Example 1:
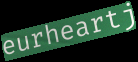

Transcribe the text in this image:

eurheartj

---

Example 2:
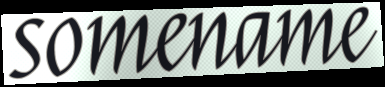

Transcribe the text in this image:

somename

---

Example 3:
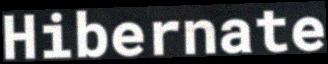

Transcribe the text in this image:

Hibernate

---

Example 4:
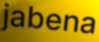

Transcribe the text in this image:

jabena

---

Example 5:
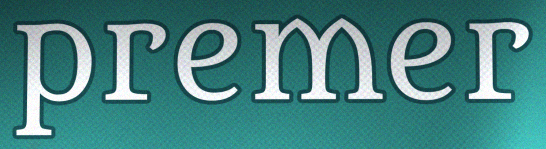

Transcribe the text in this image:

premer